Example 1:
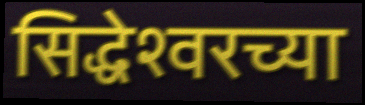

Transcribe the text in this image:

सिद्धेश्वरच्या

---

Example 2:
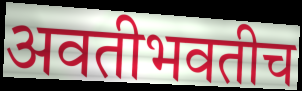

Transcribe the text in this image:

अवतीभवतीच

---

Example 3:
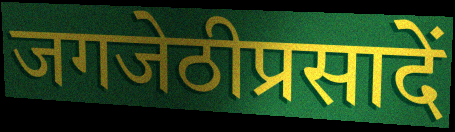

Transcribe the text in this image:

जगजेठीप्रसादें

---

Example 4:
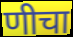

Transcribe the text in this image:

णीचा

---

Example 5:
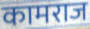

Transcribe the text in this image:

कामराज